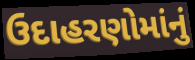
ઉદાહરણોમાંનું